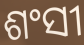
ଶଂସୀ